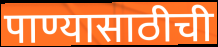
पाण्यासाठीची